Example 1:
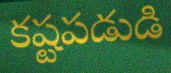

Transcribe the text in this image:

కష్టపడుడి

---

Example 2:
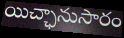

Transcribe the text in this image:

యిచ్ఛానుసారం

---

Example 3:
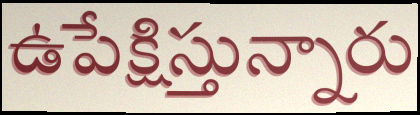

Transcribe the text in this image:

ఉపేక్షిస్తున్నారు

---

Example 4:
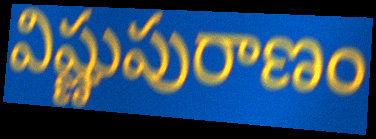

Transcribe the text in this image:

విష్ణుపురాణం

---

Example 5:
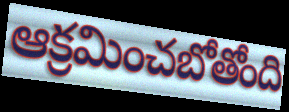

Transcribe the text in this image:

ఆక్రమించబోతోంది